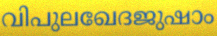
വിപുലഖേദജുഷാം